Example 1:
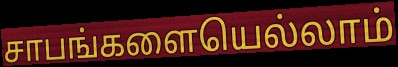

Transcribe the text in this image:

சாபங்களையெல்லாம்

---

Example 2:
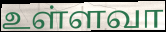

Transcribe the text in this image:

உள்ளவா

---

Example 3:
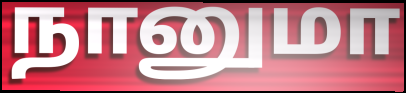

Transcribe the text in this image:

நானுமா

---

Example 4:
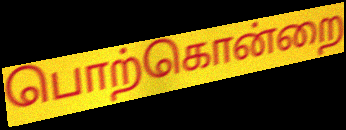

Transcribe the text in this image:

பொற்கொன்றை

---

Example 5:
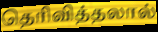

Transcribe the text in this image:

தெரிவித்தலால்